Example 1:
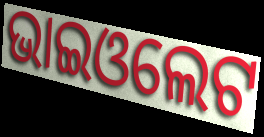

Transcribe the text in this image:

ଭାଇଓଲେଟ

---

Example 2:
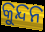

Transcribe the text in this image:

କୁନ୍ଦନ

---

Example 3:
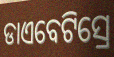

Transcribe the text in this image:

ଡାଏବେଟିସ୍ରେ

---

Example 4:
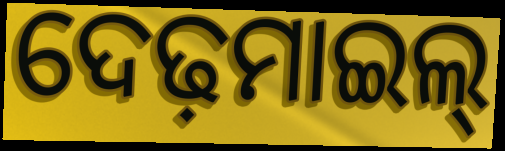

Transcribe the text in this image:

ଦେଢ଼ମାଇଲ୍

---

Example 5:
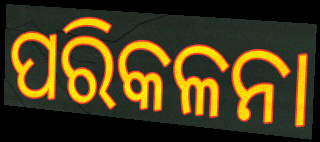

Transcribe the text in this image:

ପରିକଳନା